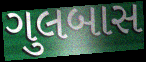
ગુલબાસ